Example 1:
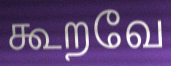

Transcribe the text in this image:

கூறவே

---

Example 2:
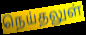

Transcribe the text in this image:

நெய்தலுள்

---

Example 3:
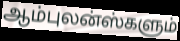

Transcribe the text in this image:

ஆம்புலன்ஸ்களும்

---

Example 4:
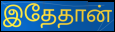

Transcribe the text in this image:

இதேதான்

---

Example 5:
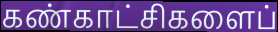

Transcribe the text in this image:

கண்காட்சிகளைப்